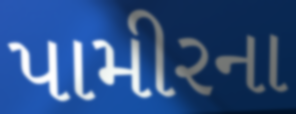
પામીરના